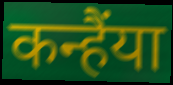
कन्हैंया